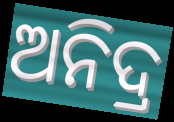
ଅନିଦ୍ର